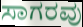
ಸಾಗರವು